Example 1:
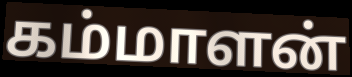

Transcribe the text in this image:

கம்மாளன்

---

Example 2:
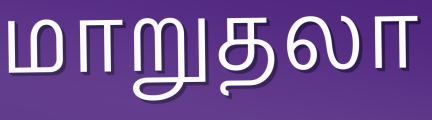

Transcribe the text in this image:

மாறுதலா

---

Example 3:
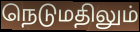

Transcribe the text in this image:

நெடுமதிலும்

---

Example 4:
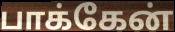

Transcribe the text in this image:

பாக்கேன்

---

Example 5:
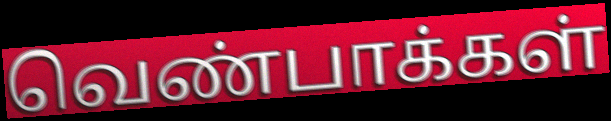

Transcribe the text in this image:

வெண்பாக்கள்